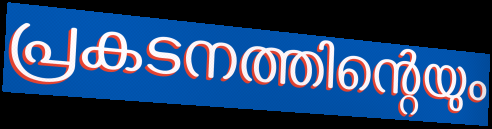
പ്രകടനത്തിന്റെയും